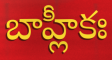
బాహ్లీకః